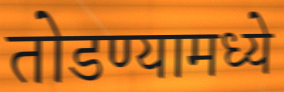
तोडण्यामध्ये